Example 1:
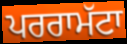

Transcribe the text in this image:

ਪਰਰਾਮੱਟਾ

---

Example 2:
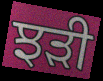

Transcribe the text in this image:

ਝੜੀ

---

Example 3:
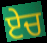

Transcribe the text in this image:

ਏਚ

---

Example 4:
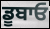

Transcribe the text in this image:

ਡੂਬਾਓ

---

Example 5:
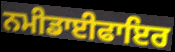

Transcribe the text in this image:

ਨਮੀਡਾਈਫਾਇਰ